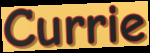
Currie